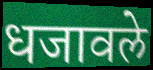
धजावले